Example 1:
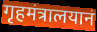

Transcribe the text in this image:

गृहमंत्रालयानं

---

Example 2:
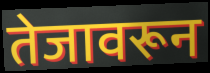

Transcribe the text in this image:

तेजावरून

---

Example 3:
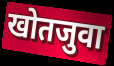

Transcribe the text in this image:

खोतजुवा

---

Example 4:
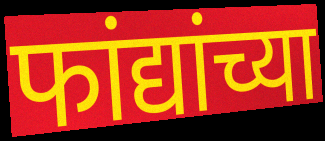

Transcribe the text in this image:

फांद्यांच्या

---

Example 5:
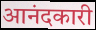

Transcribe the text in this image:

आनंदकारी